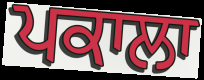
ਪਕਾਲਾ